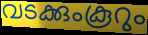
വടക്കുംകൂറും